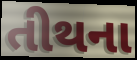
તીથના